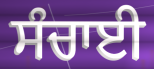
ਸੰਚਾਈ